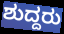
ಶುದ್ದರು